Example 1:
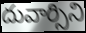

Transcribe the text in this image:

దువార్సిని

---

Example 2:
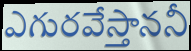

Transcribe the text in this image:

ఎగురవేస్తాననీ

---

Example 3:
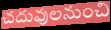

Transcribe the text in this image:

చదువులనుంచి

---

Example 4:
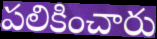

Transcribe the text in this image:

పలికించారు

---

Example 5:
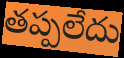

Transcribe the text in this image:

తప్పలేదు